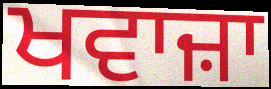
ਖਵਾਜ਼ਾ